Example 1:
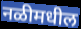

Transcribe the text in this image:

नळीमधील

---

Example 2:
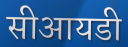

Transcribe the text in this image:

सीआयडी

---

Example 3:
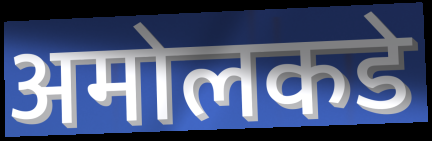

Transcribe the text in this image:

अमोलकडे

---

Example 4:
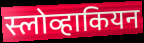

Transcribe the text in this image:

स्लोव्हाकियन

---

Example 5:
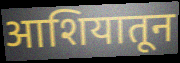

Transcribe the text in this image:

आशियातून